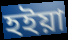
হইয়া